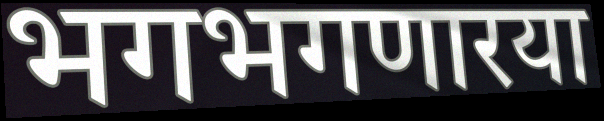
भगभगणारया